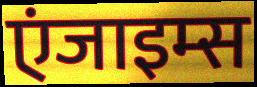
एंजाइम्‍स